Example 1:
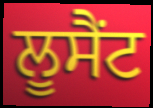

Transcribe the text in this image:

ਲੂਸੈਂਟ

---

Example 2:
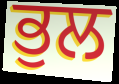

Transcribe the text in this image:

ਭੁਲ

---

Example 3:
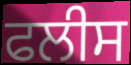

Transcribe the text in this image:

ਫਲੀਸ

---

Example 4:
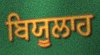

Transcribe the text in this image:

ਬਿਯੂਲਾਹ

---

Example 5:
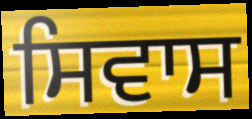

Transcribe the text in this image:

ਸਿਵਾਸ